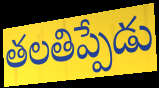
తలతిప్పేడు